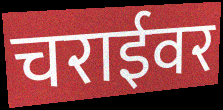
चराईवर